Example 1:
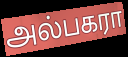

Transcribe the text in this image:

அல்பகரா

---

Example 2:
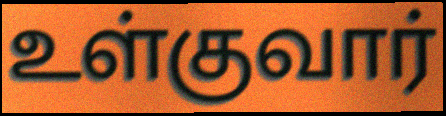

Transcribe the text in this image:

உள்குவார்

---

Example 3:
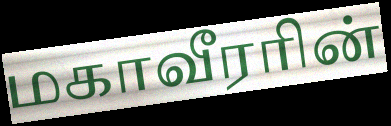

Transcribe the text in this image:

மகாவீரரின்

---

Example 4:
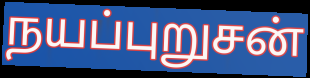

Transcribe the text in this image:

நயப்புறுசன்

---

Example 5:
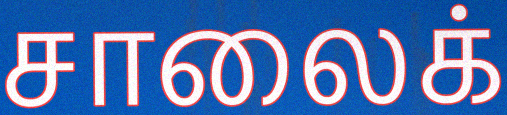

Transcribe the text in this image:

சாலைக்